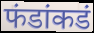
फंडांकडं